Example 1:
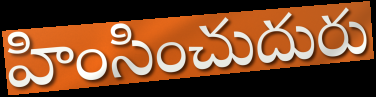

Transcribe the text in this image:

హింసించుదురు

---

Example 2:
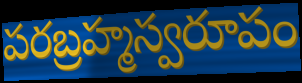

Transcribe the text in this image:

పరబ్రహ్మస్వరూపం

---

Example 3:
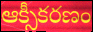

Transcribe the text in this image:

ఆక్సీకరణం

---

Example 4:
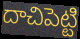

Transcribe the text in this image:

దాచిపెట్టి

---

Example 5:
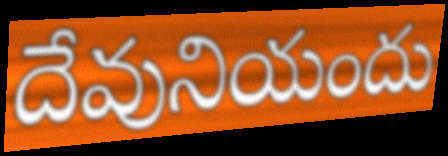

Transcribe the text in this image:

దేవునియందు